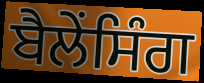
ਬੈਲੇਂਸਿੰਗ